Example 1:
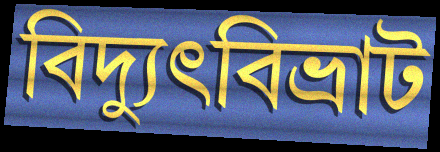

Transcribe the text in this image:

বিদ্যুৎবিভ্রাট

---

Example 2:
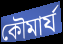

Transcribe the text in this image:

কৌমার্য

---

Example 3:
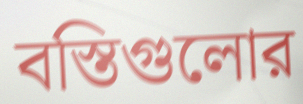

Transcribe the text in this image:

বস্তিগুলোর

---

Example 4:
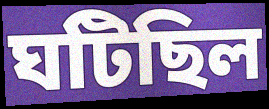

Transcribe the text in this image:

ঘটিছিল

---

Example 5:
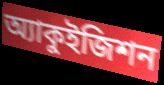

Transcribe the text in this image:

অ্যাকুইজিশন